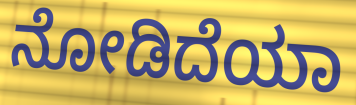
ನೋಡಿದೆಯಾ